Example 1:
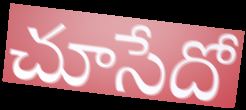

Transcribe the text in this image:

చూసేదో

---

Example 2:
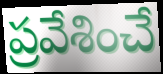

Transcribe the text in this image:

ప్రవేశించే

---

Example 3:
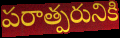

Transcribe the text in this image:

పరాత్పరునికి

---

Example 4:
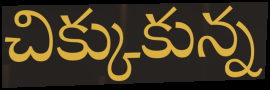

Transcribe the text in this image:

చిక్కుకున్న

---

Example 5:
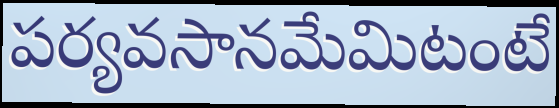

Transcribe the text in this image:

పర్యవసానమేమిటంటే